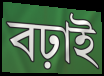
বঢ়াই